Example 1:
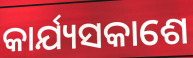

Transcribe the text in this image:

କାର୍ଯ୍ୟସକାଶେ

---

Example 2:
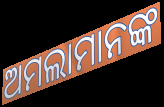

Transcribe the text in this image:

ଅମଲାମାନଙ୍କ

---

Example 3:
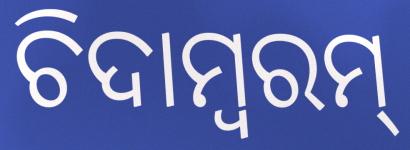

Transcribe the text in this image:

ଚିଦାମ୍ବରମ୍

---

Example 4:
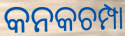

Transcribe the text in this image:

କନକଚମ୍ପା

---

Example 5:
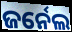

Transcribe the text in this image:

ଜର୍ନେଲ